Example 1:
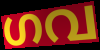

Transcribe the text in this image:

ഗവ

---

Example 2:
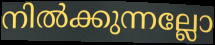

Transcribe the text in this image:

നിൽക്കുന്നല്ലോ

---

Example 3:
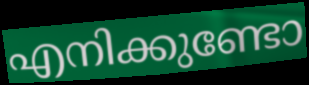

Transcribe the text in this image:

എനിക്കുണ്ടോ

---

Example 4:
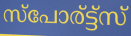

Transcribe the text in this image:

സ്പോര്ട്ട്സ്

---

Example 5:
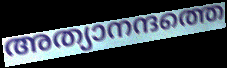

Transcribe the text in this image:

അത്യാനന്ദത്തെ